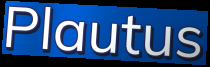
Plautus